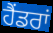
ਹੈਂਡਰਾਂ